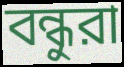
বন্ধুরা